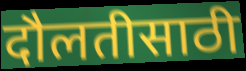
दौलतीसाठी